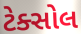
ટેક્સોલ